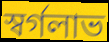
স্বর্গলাভ